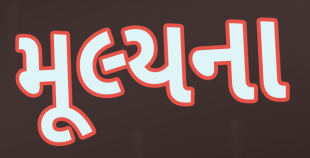
મૂલ્યના